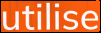
utilise